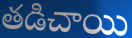
తడిచాయి